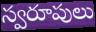
స్వరూపులు